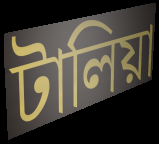
টালিয়া